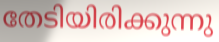
തേടിയിരിക്കുന്നു